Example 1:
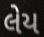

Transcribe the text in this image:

લેય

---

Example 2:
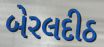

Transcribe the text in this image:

બેરલદીઠ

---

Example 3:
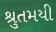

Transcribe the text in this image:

શ્રુતમયી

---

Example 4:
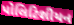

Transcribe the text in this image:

પોલિટિશીયન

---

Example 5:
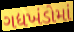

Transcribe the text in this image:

ગદ્યખંડોમાં